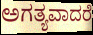
ಅಗತ್ಯವಾದರೆ